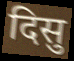
दिसु